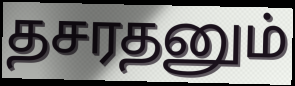
தசரதனும்